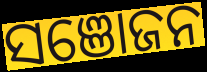
ସଞୋଜନ